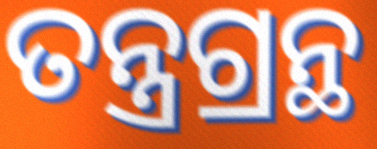
ତନ୍ତ୍ରଗ୍ରନ୍ଥ